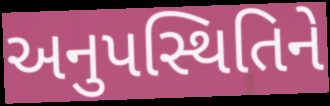
અનુપસ્થિતિને